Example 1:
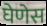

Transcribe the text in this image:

घेणेस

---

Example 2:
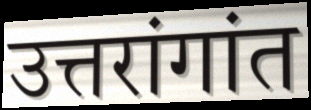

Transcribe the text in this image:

उत्तरांगांत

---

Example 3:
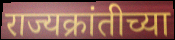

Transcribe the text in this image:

राज्यक्रांतीच्या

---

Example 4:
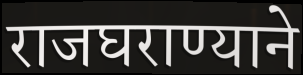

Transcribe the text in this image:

राजघराण्याने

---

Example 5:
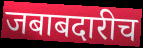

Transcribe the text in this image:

जबाबदारीच